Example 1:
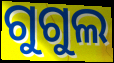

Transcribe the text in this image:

ଗୁଗୁଲ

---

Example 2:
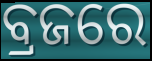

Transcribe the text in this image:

ବ୍ରଜରେ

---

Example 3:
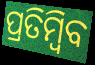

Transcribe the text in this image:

ପ୍ରତିମ୍ବିବ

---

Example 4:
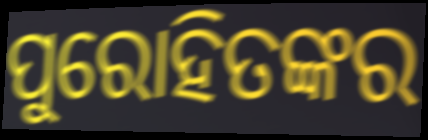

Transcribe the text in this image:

ପୁରୋହିତଙ୍କର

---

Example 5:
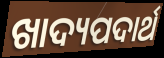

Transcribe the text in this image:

ଖାଦ୍ୟପଦାର୍ଥ